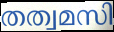
തത്വമസി